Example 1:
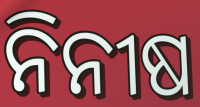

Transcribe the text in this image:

ନିନୀଷ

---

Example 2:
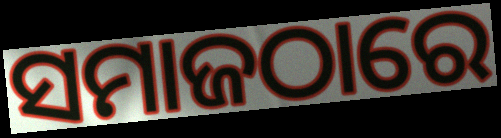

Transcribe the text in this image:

ସମାଜଠାରେ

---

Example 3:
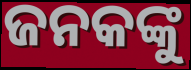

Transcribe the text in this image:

ଜନକଙ୍କୁ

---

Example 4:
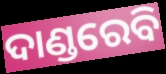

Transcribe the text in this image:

ଦାଣ୍ଡରେବି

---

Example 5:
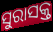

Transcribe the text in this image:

ସୁରାସକ୍ତ